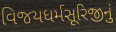
વિજયધર્મસૂરિજીનું